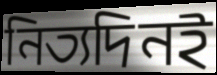
নিত্যদিনই